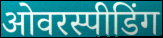
ओवरस्पीडिंग